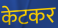
केटकर